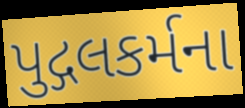
પુદ્ગલકર્મના